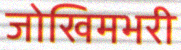
जोखिमभरी